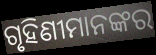
ଗୃହିଣୀମାନଙ୍କର